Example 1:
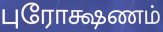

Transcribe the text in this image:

புரோக்ஷணம்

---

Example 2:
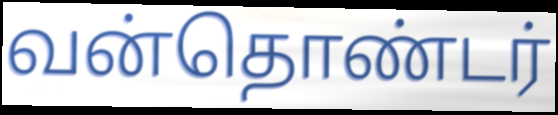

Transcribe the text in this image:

வன்தொண்டர்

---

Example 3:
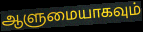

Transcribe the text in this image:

ஆளுமையாகவும்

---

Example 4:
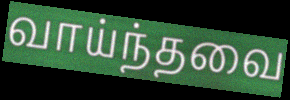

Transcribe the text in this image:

வாய்ந்தவை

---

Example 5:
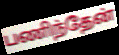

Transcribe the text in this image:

பணிந்தேன்